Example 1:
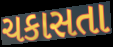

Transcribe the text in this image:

ચકાસતા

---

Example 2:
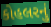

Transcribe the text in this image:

કોહલરનું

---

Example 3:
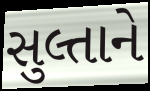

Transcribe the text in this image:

સુલ્તાને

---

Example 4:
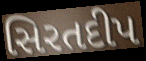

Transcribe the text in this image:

સિરતદીપ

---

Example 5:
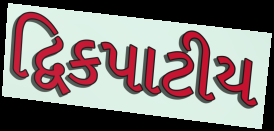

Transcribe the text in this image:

દ્વિકપાટીય